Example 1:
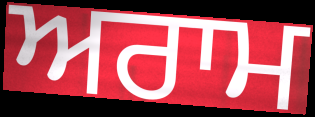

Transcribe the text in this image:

ਅਰਾਮ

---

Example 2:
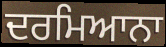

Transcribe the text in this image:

ਦਰਮਿਆਨਾ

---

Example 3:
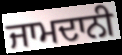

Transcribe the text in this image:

ਜਾਮਦਾਨੀ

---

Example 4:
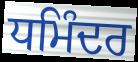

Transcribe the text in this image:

ਧਮਿੰਦਰ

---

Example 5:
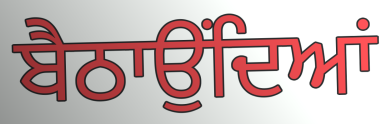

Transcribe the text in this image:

ਬੈਠਾਉਂਦਿਆਂ